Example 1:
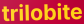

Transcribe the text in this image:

trilobite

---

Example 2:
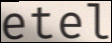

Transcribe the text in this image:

etel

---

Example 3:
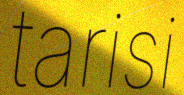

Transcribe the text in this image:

tarisi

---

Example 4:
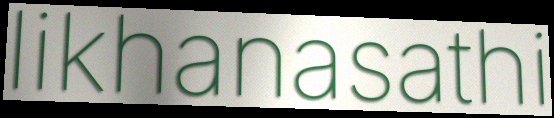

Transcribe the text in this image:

likhanasathi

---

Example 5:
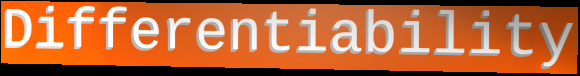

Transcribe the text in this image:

Differentiability